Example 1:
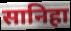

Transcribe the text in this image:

सानिहा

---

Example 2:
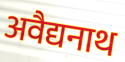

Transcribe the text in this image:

अवैद्यनाथ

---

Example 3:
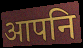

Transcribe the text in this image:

आपनि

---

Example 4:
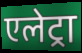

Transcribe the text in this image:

एलेट्रा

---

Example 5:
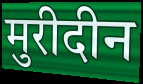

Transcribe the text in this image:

मुरीदीन